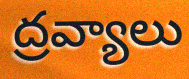
ద్రవ్యాలు